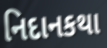
નિદાનકથા